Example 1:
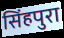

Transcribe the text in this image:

सिंहपुरा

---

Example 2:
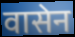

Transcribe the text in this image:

वासेन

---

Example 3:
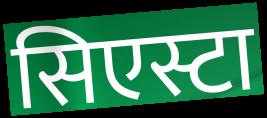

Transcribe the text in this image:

सिएस्टा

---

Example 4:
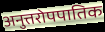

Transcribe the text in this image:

अनुत्तरोपपातिक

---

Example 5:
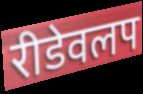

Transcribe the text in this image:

रीडेवलप